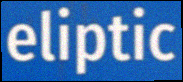
eliptic